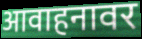
आवाहनावर